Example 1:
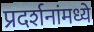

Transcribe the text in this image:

प्रदर्शनांमध्ये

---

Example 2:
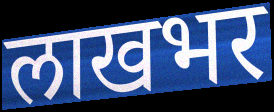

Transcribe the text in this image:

लाखभर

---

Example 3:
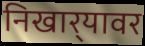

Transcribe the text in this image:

निखार्‍यावर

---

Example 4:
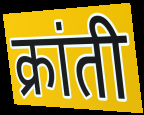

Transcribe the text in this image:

क्रांती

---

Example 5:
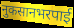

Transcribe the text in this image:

नुकसानभरपाई